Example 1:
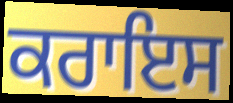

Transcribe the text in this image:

ਕਰਾਇਸ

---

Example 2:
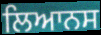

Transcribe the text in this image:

ਲਿਆਨਸ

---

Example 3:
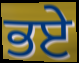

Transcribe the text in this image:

ਭਏ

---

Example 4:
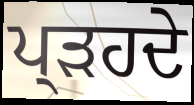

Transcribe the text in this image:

ਪ੍ੜਹਦੇ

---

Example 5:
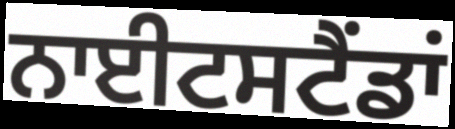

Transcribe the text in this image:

ਨਾਈਟਸਟੈਂਡਾਂ